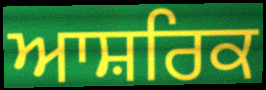
ਆਸ਼ਰਿਕ